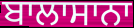
ਬਾਲਾਸਾਨਾ